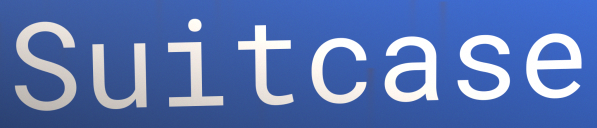
Suitcase